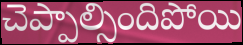
చెప్పాల్సిందిపోయి